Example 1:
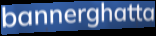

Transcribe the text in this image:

bannerghatta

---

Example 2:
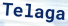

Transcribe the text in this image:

Telaga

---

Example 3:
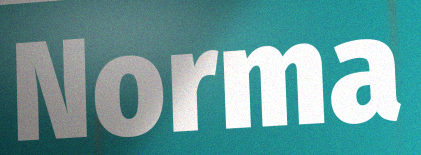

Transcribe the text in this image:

Norma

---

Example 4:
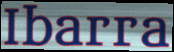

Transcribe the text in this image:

Ibarra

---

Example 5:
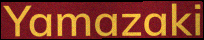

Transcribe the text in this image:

Yamazaki